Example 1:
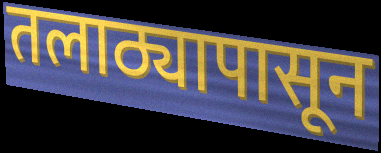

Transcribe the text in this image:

तलाठ्यापासून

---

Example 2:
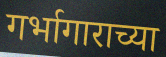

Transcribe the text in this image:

गर्भागाराच्या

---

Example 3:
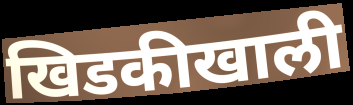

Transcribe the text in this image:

खिडकीखाली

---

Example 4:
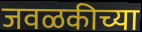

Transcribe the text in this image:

जवळकीच्या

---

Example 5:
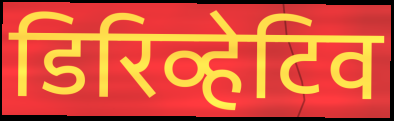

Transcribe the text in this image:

डिरिव्हेटिव